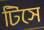
টিসে